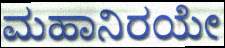
ಮಹಾನಿರಯೇ